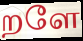
றளே